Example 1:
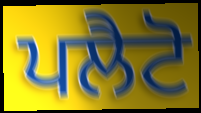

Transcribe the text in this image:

ਪਲੈਟੋ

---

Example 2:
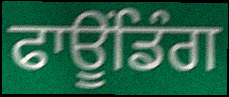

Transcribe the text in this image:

ਫਾਊਂਡਿੰਗ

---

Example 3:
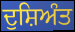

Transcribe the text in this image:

ਦੁਸ਼ਿਅੰਤ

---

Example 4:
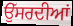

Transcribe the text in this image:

ਉੱਸਰਦੀਆਂ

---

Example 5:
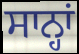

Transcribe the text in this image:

ਸਾਨ੍ਹਾਂ